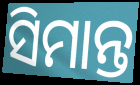
ସିମାନ୍ତ